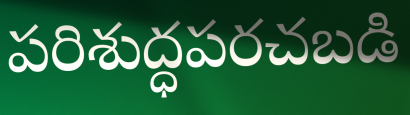
పరిశుద్ధపరచబడి